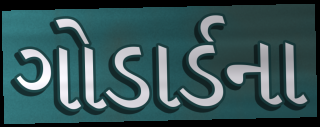
ગોડાર્ડના